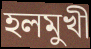
হলমুখী